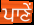
ਪਾਣੇਂ